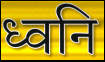
ध्वनि